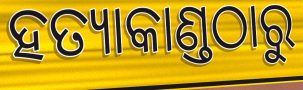
ହତ୍ୟାକାଣ୍ଡଠାରୁ